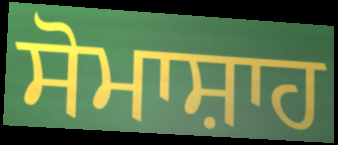
ਸੋਮਾਸ਼ਾਹ